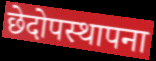
छेदोपस्थापना